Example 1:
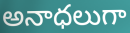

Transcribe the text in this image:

అనాధలుగా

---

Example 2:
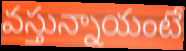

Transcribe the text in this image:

వస్తున్నాయంటే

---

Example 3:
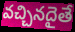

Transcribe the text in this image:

వచ్చినదైతే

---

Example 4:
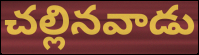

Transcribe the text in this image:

చల్లినవాడు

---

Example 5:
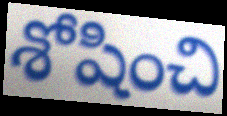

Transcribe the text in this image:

శోషించి